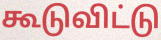
கூடுவிட்டு